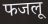
फजलू